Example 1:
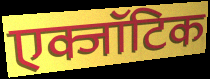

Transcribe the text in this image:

एक्जॉटिक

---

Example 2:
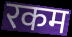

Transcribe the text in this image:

रकम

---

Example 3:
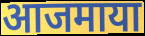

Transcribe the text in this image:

आजमाया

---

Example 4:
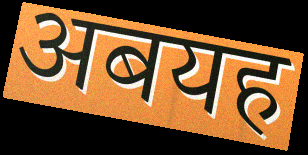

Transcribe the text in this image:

अबयह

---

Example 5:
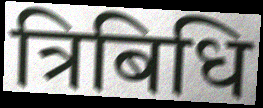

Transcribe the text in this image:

त्रिबिधि